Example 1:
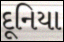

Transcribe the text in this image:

દૂનિયા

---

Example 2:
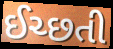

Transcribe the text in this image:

ઈચ્છતી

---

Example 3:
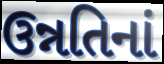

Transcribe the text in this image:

ઉન્નતિનાં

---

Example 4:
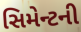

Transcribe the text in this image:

સિમેન્ટની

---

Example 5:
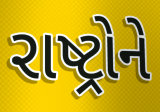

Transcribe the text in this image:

રાષ્ટ્રોને